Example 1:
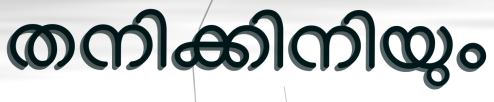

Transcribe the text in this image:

തനിക്കിനിയും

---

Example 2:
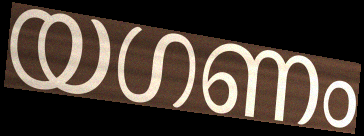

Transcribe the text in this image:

യഗണം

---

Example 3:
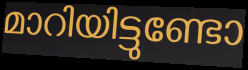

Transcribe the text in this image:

മാറിയിട്ടുണ്ടോ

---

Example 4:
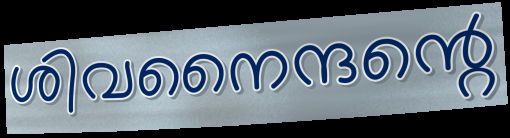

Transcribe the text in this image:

ശിവനൈന്ദന്റെ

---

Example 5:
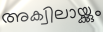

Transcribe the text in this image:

അക്വിലായ്ക്കും